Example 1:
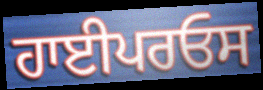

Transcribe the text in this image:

ਹਾਈਪਰਓਸ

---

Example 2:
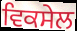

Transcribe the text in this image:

ਵਿਕਸੇਲ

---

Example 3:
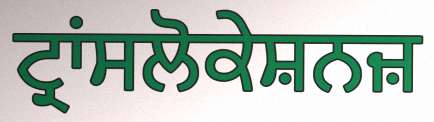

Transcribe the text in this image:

ਟ੍ਰਾਂਸਲੋਕੇਸ਼ਨਜ਼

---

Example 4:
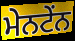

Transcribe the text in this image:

ਮੇਨਟੇਂਨ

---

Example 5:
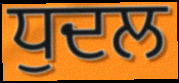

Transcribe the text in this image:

ਧੁਦਲ